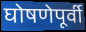
घोषणेपूर्वी